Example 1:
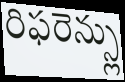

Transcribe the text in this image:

రిఫరెన్స్లు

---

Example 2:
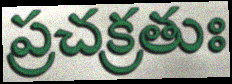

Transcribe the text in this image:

ప్రచక్రతుః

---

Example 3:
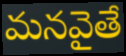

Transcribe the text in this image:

మనవైతే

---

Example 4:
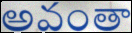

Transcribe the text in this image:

అవంతా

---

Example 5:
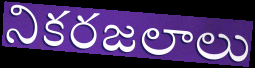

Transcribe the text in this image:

నికరజలాలు